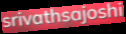
srivathsajoshi